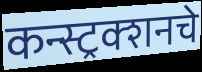
कन्स्ट्रक्शनचे